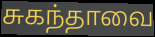
சுகந்தாவை